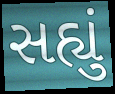
સહ્યું